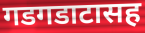
गडगडाटासह